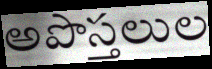
అపొస్తలుల